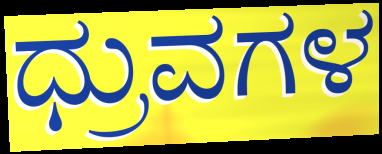
ಧ್ರುವಗಳ